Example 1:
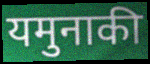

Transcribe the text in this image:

यमुनाकी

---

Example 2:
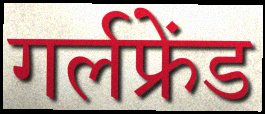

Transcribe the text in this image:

गर्लफ्रेंड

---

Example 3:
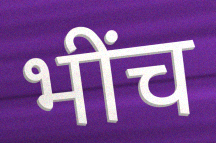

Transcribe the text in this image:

भींच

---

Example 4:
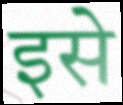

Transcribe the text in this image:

इसे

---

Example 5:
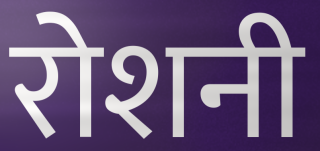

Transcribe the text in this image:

रोशनी